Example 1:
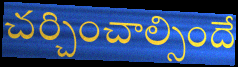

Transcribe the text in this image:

చర్చించాల్సిందే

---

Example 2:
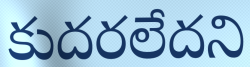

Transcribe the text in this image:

కుదరలేదని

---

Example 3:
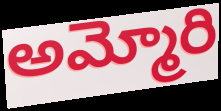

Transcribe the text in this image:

అమ్మోరి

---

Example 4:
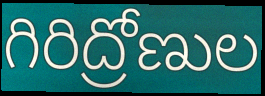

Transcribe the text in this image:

గిరిద్రోణుల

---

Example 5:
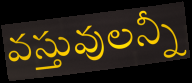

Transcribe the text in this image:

వస్తువులన్నీ